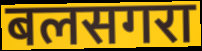
बलसगरा